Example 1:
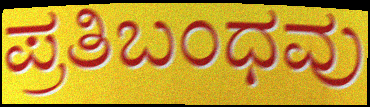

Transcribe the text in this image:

ಪ್ರತಿಬಂಧವು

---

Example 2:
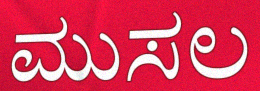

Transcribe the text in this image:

ಮುಸಲ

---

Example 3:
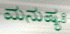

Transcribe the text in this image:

ಮನುಷ್ಯಃ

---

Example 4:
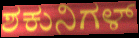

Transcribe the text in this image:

ಶಕುನಿಗಳ್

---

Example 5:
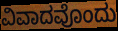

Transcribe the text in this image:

ವಿವಾದವೊಂದು